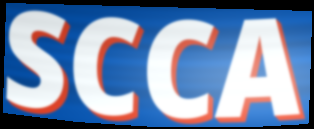
SCCA